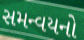
સમન્વયનો